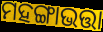
ମହଙ୍ଗାଭତ୍ତା